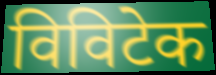
विविटेक